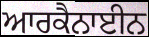
ਆਰਕੈਨਾਈਨ